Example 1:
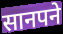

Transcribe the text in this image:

सानपने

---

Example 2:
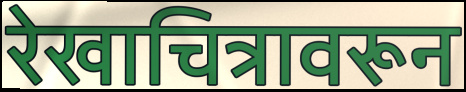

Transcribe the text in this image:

रेखाचित्रावरून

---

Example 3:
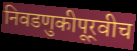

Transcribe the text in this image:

निवडणुकीपूर्वीच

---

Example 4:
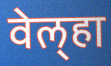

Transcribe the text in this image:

वेल्हा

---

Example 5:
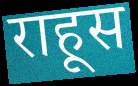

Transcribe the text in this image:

राहूस